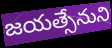
జయత్సేనుని